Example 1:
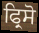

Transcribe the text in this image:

ਫ੍ਰਿਸੋ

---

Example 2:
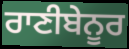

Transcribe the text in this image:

ਰਾਣੀਬੇਨੂਰ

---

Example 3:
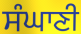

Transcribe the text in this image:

ਸੰਘਾਣੀ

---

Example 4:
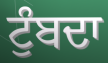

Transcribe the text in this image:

ਟੁੰਬਦਾ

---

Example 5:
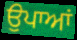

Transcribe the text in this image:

ਉਪਾਆਂ